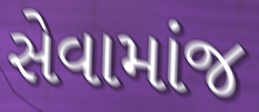
સેવામાંજ